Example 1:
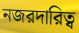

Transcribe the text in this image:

নজরদারিত্ব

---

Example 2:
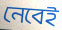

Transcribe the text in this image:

নেবেই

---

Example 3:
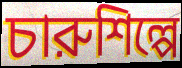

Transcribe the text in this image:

চারুশিল্পে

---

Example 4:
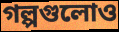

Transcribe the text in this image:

গল্পগুলোও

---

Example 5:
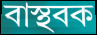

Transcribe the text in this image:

বাস্থবক